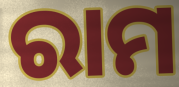
ରାମ